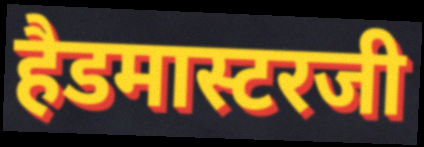
हैडमास्टरजी